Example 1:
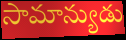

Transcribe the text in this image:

సామాన్యుడు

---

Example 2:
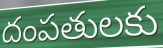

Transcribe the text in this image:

దంపతులకు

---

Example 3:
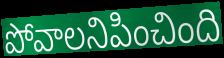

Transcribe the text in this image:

పోవాలనిపించింది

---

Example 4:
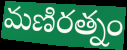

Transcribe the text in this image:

మణిరత్నం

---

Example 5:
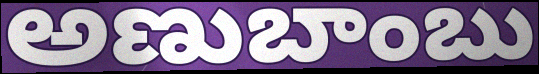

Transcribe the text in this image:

అణుబాంబు